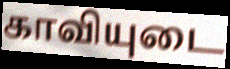
காவியுடை